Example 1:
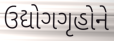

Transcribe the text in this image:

ઉદ્યોગગૃહોને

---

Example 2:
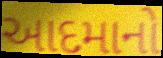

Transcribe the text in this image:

આદમાનો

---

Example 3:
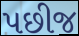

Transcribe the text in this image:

પછીજ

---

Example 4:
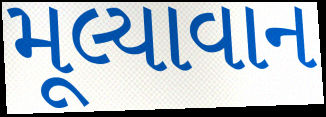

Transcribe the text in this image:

મૂલ્યાવાન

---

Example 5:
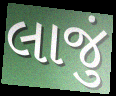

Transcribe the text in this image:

લાજું